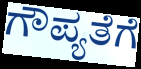
ಗೌಪ್ಯತೆಗೆ